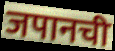
जपानची